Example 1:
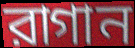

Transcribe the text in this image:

রাগান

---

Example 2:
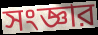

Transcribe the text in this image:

সংজ্ঞার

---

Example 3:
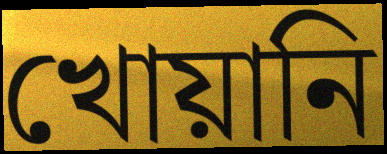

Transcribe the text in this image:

খোয়ানি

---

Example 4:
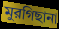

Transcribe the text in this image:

মুরগিছানা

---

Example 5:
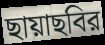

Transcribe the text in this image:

ছায়াছবির